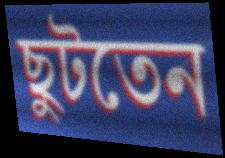
ছুটতেন